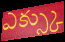
ఎక్స్కు